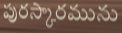
పురస్కారమును